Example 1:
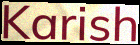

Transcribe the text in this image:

Karish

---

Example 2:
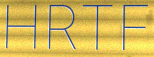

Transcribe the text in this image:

HRTF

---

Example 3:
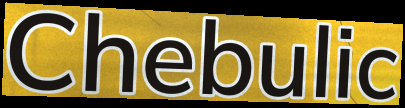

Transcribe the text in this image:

Chebulic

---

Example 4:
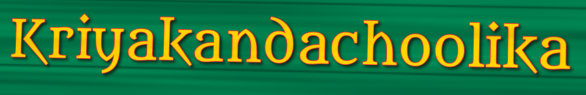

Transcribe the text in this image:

Kriyakandachoolika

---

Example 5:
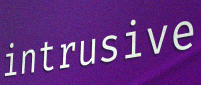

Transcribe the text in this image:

intrusive